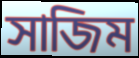
সাজিম